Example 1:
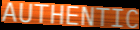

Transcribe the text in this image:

AUTHENTIC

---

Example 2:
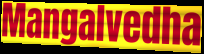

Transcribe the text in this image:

Mangalvedha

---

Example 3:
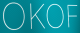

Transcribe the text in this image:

OKOF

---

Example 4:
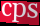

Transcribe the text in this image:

cps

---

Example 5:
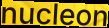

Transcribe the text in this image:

nucleon